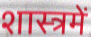
शास्त्रमें